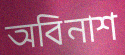
অবিনাশ